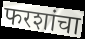
फरशांचा